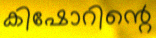
കിഷോറിന്റെ